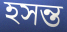
হসন্ত